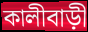
কালীবাড়ী